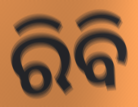
ରିବି